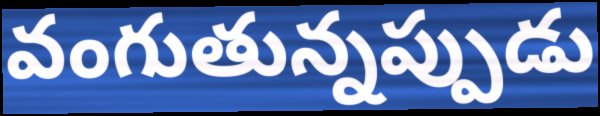
వంగుతున్నప్పుడు